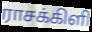
ராசக்கிளி